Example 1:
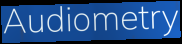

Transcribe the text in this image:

Audiometry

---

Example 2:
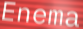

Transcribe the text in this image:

Enema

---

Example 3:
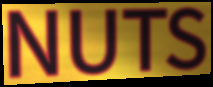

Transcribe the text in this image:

NUTS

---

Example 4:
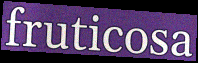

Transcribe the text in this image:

fruticosa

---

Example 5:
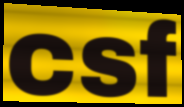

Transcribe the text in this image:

csf